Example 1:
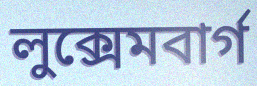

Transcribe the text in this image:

লুক্সেমবার্গ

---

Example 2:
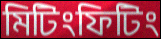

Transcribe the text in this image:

মিটিংফিটিং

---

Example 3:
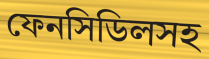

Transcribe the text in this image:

ফেনসিডিলসহ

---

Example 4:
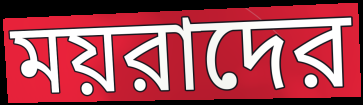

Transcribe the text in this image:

ময়রাদের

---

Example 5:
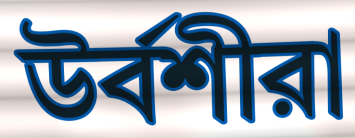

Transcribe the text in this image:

উর্বশীরা